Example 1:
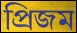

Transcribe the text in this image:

প্রিজম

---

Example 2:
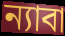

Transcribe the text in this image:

ন্যাবা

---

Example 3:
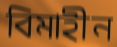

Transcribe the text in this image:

বিমাহীন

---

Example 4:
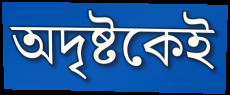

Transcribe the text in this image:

অদৃষ্টকেই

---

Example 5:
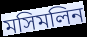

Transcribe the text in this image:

মসিমলিন